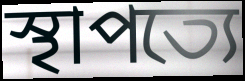
স্থাপত্যে